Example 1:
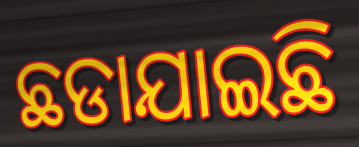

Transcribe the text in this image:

ଛଡାଯାଇଛି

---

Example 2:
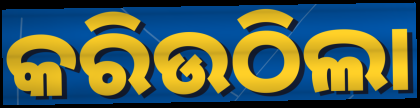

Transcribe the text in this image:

କରିଉଠିଲା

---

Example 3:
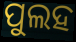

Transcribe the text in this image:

ପୁଲହ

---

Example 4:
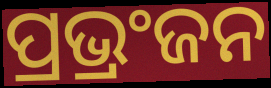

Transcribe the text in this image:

ପ୍ରଭ୍ରଂଜନ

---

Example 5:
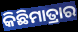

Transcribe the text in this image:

କିଛିମାତ୍ରାର